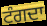
ਟੰਗਦਾ